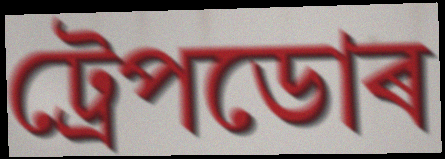
ট্ৰেপডোৰ